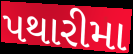
પથારીમા